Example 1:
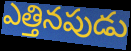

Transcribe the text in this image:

ఎత్తినపుడు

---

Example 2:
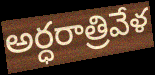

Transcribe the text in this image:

అర్ధరాత్రివేళ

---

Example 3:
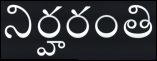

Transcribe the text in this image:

నిర్హరంతి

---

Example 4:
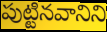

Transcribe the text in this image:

పుట్టినవానిని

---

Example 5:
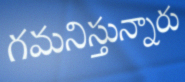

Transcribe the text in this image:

గమనిస్తున్నారు